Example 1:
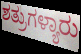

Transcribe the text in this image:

ಶತ್ರುಗಳ್ಯಾರು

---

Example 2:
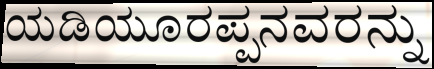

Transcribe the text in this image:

ಯಡಿಯೂರಪ್ಪನವರನ್ನು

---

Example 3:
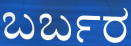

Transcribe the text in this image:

ಬರ್ಬರ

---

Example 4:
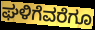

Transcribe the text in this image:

ಘಳಿಗೆವರೆಗೂ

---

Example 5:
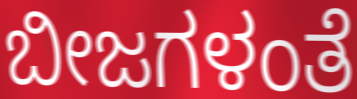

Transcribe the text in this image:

ಬೀಜಗಳಂತೆ